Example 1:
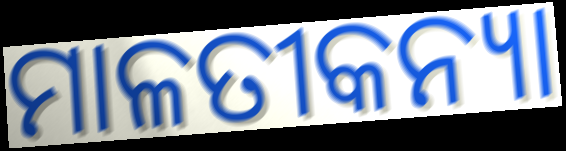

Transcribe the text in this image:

ମାଳତୀକନ୍ୟା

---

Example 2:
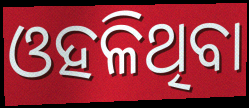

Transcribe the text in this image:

ଓହଳିଥିବା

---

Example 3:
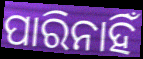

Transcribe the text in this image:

ପାରିନାହିଁ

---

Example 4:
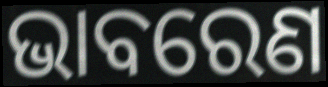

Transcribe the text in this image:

ଭାବରେଣ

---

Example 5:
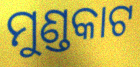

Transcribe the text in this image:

ମୁଣ୍ଡକାଟ